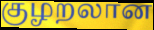
குழறலான